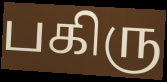
பகிரு